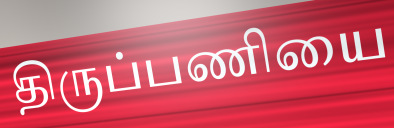
திருப்பணியை